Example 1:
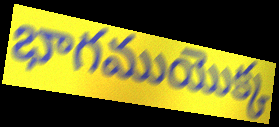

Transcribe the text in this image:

భాగముయొక్క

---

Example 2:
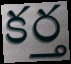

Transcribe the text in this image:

కర్త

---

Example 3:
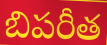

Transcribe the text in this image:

బిపరీత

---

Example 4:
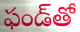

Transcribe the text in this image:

ఫండ్‌తో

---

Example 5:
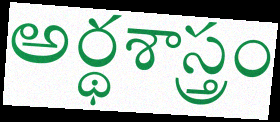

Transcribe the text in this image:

అర్థశాస్త్రం